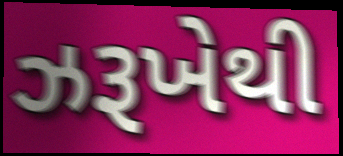
ઝરૂખેથી